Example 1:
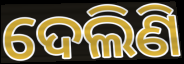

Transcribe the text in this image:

ଦେଲିଣି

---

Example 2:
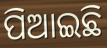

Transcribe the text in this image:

ପିଆଇଛି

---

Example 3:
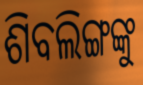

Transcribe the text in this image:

ଶିବଲିଙ୍ଗଙ୍କୁ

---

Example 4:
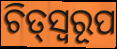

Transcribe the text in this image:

ଚିତ୍‌ସ୍ୱରୂପ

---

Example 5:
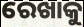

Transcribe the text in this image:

ରେଖାକୁ